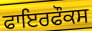
ਫਾਇਰਫੌਕਸ